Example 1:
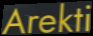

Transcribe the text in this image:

Arekti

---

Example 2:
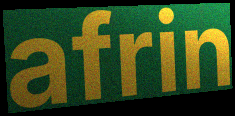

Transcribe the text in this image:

afrin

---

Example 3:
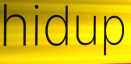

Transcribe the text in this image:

hidup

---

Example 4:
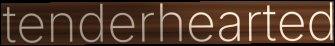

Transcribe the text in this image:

tenderhearted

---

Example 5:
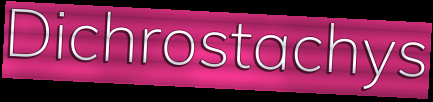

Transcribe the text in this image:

Dichrostachys